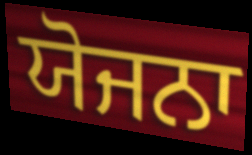
ਯੋਜਨਾ